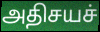
அதிசயச்